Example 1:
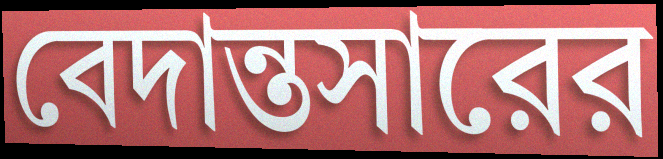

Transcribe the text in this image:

বেদান্তসারের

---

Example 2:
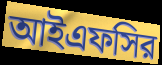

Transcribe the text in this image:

আইএফসির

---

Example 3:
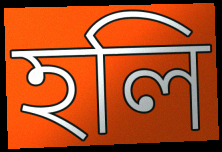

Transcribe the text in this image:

হলি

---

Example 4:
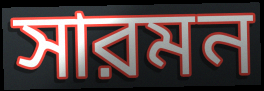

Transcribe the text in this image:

সারমন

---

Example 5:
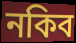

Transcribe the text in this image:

নকিব